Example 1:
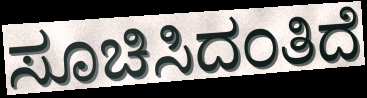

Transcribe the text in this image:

ಸೂಚಿಸಿದಂತಿದೆ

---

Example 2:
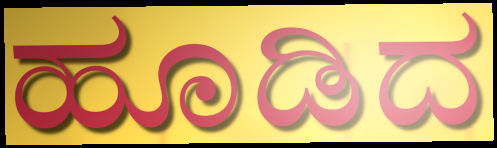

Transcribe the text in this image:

ಹೂಡಿದ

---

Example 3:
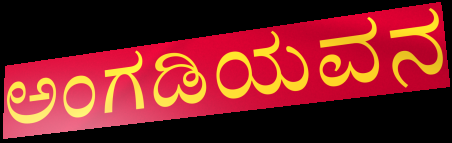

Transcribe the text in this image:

ಅಂಗಡಿಯವನ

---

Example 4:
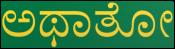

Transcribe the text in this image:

ಅಥಾತೋ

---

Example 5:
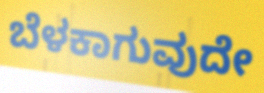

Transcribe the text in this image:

ಬೆಳಕಾಗುವುದೇ